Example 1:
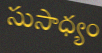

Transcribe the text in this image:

సుసాధ్యం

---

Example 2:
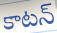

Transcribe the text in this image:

కాటన్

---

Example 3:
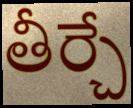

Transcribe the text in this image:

తీర్చే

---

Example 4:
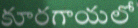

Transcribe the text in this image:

కూరగాయలో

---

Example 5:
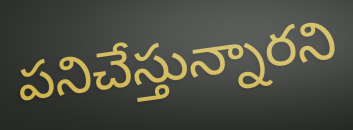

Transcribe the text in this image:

పనిచేస్తున్నారని